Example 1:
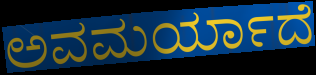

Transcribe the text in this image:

ಅವಮರ್ಯಾದೆ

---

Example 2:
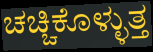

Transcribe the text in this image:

ಚಚ್ಚಿಕೊಳ್ಳುತ್ತ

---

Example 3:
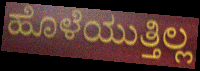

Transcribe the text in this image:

ಹೊಳೆಯುತ್ತಿಲ್ಲ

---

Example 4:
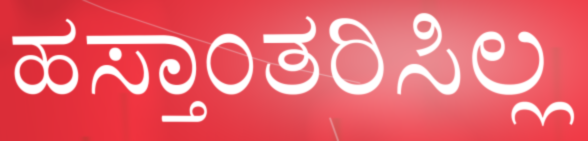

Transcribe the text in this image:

ಹಸ್ತಾಂತರಿಸಿಲ್ಲ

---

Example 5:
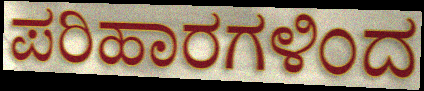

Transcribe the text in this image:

ಪರಿಹಾರಗಳಿಂದ